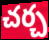
చర్చ